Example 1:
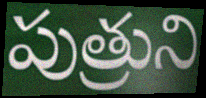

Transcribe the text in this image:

పుత్రుని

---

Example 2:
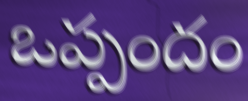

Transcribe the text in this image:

ఒప్పందం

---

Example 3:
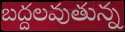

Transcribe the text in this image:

బద్దలవుతున్న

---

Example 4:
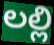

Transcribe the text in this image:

లల్లి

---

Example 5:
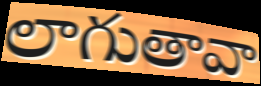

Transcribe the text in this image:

లాగుతావా